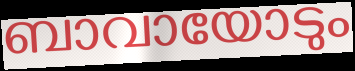
ബാവായോടും